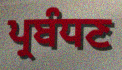
ਪ੍ਰਬੰਧਣ